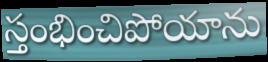
స్తంభించిపోయాను